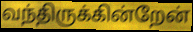
வந்திருக்கின்றேன்